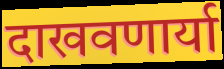
दाखवणार्या